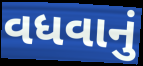
વધવાનું